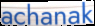
achanak